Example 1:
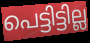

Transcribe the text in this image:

പെട്ടിട്ടില്ല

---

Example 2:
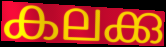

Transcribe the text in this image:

കലക്കു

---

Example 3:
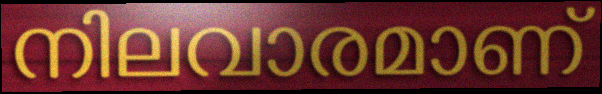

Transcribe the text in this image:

നിലവാരമാണ്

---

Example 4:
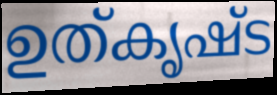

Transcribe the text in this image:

ഉത്കൃഷ്ട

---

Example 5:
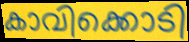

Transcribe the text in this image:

കാവിക്കൊടി